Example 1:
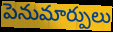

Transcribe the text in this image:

పెనుమార్పులు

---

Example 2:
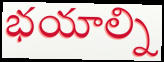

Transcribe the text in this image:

భయాల్ని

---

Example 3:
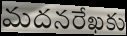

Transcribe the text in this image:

మదనరేఖకు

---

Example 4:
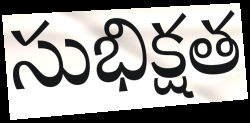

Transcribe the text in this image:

సుభిక్షత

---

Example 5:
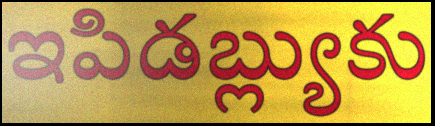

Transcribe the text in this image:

ఇపిడబ్ల్యుకు